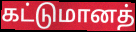
கட்டுமானத்